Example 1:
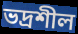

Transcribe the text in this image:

ভদ্রশীল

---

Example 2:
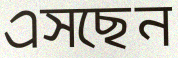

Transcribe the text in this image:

এসছেন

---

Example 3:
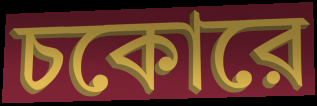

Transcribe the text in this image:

চকোরে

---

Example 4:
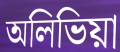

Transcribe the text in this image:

অলিভিয়া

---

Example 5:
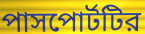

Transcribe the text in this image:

পাসপোর্টটির